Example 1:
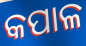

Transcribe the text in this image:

କପାଳ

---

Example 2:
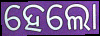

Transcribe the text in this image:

ହେଲୋ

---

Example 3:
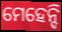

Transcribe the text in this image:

ମେହେନ୍ଦି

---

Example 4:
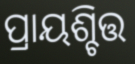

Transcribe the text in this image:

ପ୍ରାୟଶ୍ଚିତ୍ତ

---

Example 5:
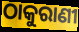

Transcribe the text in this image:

ଠାକୁରାଣୀ